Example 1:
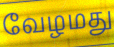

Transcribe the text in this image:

வேழமது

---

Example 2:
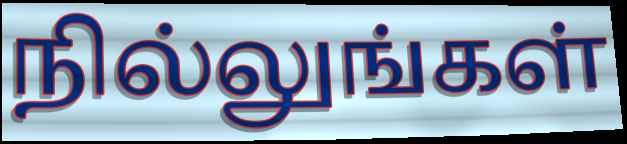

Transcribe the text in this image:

நில்லுங்கள்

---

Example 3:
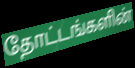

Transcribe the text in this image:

தோட்டங்களின்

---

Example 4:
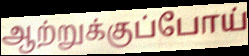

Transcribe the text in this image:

ஆற்றுக்குப்போய்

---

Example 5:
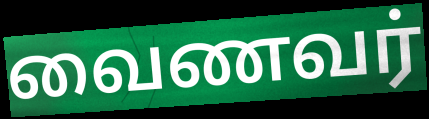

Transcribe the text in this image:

வைணவர்